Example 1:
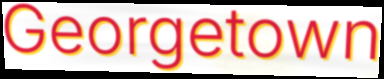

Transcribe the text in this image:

Georgetown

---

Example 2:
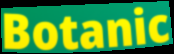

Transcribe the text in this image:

Botanic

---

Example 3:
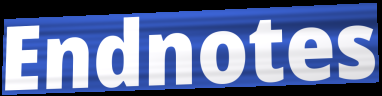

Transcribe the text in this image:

Endnotes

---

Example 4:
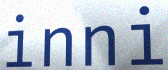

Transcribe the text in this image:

inni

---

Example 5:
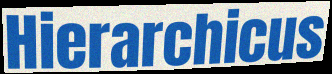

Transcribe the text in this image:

Hierarchicus